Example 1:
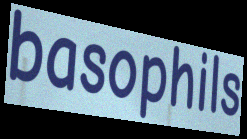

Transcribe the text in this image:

basophils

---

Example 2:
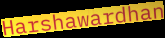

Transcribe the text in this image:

Harshawardhan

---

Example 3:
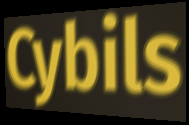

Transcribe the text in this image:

Cybils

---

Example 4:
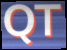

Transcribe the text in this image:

QT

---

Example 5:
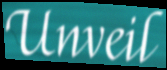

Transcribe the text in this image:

Unveil